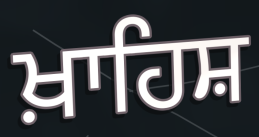
ਖ਼ਾਹਿਸ਼